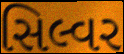
સિલ્વર